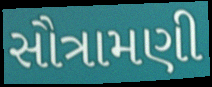
સૌત્રામણી